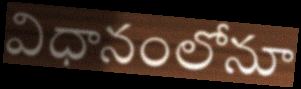
విధానంలోనూ